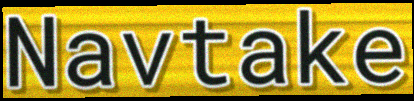
Navtake